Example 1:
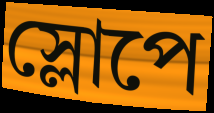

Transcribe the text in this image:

স্লোপে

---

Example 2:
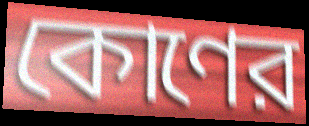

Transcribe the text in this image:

কোণের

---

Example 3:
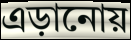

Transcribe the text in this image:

এড়ানোয়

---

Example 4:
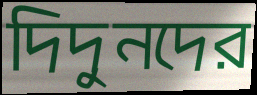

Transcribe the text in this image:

দিদুনদের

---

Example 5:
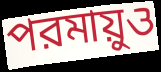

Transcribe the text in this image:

পরমায়ুও